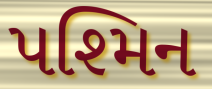
પશ્મિન